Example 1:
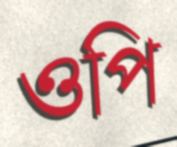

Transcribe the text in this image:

ওপি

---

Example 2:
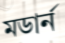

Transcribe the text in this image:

মডার্ন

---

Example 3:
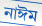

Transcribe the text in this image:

নাঈম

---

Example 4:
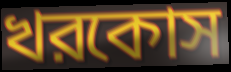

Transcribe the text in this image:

খরকোস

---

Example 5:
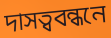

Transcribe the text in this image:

দাসত্ববন্ধনে